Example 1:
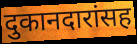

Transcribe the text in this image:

दुकानदारांसह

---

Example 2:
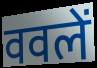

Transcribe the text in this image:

ववलें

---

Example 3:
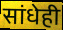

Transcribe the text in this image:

सांधेही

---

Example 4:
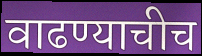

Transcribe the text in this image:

वाढण्याचीच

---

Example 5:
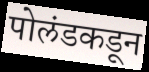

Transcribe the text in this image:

पोलंडकडून